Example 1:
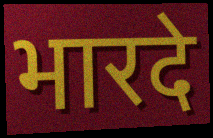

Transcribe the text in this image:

भारदे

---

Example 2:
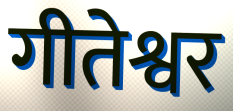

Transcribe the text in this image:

गीतेश्वर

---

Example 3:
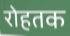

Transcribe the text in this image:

रोहतक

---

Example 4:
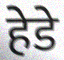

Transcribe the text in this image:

हेडे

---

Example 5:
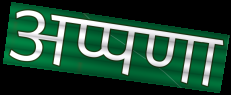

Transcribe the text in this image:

अप्पणा